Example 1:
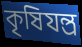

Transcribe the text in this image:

কৃষিযন্ত্র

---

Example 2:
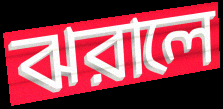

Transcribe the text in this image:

ঝরালে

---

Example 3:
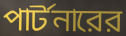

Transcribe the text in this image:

পার্টনারের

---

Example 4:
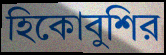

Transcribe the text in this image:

হিকোবুশির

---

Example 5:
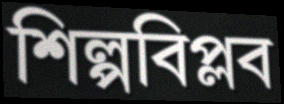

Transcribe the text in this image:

শিল্পবিপ্লব